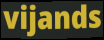
vijands